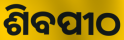
ଶିବପୀଠ